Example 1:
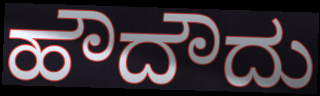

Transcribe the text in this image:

ಹೌದೌದು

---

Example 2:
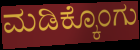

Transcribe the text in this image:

ಮಡಿಕ್ಕೊಂಗು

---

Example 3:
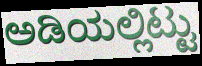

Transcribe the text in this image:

ಅಡಿಯಲ್ಲಿಟ್ಟು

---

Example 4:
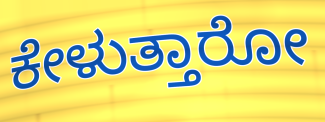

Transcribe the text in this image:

ಕೇಳುತ್ತಾರೋ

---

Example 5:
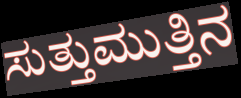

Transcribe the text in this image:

ಸುತ್ತುಮುತ್ತಿನ